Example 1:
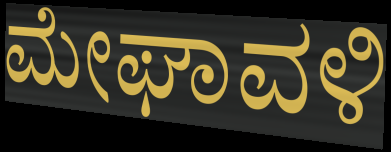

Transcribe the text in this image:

ಮೇಘಾವಳಿ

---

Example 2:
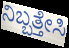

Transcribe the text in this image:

ನಿಬ್ಬತ್ತೇಸಿ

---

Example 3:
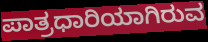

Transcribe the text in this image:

ಪಾತ್ರಧಾರಿಯಾಗಿರುವ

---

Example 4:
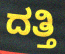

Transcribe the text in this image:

ದತ್ತಿ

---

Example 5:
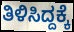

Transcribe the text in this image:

ತಿಳಿಸಿದ್ದಕ್ಕೆ